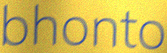
bhonto